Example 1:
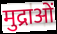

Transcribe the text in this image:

मुद्राओं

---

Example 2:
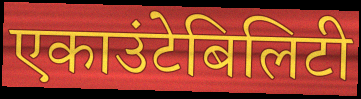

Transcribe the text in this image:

एकाउंटेबिलिटी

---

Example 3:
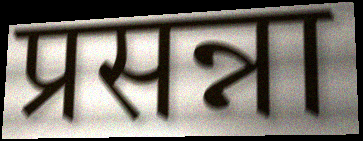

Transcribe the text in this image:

प्रसन्ना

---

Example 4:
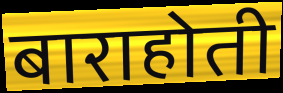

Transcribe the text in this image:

बाराहोती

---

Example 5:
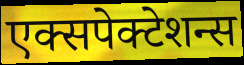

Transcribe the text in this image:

एक्सपेक्टेशन्स